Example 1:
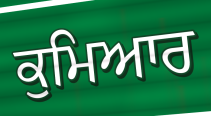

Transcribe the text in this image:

ਕੁਮਿਆਰ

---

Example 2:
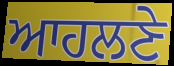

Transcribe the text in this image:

ਆਹਲਣੇ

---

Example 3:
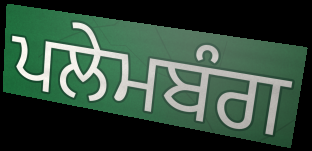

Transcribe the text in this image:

ਪਲੇਮਬੰਗ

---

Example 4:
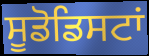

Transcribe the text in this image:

ਸੂਡੋਡਿਸਟਾਂ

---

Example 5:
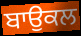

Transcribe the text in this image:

ਬਾਉਕਲ